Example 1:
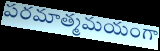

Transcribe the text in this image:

పరమాత్మమయంగా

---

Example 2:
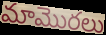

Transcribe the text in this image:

మామొరలు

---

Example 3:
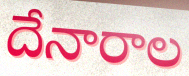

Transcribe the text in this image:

దేనారాల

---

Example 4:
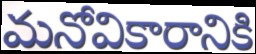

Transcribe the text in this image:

మనోవికారానికి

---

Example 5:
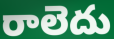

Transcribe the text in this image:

రాలెదు